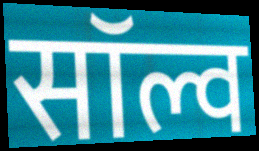
सॉल्व